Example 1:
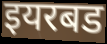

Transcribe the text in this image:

इयरबड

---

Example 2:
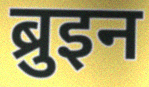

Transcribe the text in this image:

ब्रुइन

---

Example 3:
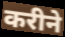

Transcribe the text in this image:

करीने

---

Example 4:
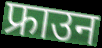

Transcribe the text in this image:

फ्राउन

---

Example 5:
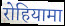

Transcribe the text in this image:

रोहियामा